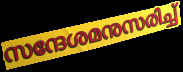
സന്ദേശമനുസരിച്ച്